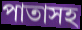
পাতাসহ